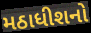
મઠાધીશનો